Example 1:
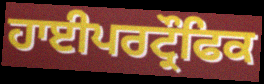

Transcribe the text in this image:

ਹਾਈਪਰਟ੍ਰੌਫਿਕ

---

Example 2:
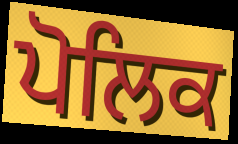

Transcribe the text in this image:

ਪੋਲਿਕ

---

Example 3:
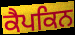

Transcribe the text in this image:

ਕੈਪਕਿਨ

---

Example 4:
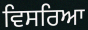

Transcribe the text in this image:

ਵਿਸਰਿਆ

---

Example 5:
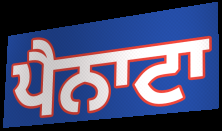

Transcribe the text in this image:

ਪੈਨਾਟਾ